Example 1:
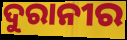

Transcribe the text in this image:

ଦୁରାନୀର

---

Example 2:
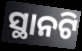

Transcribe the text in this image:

ସ୍ଥାନଟି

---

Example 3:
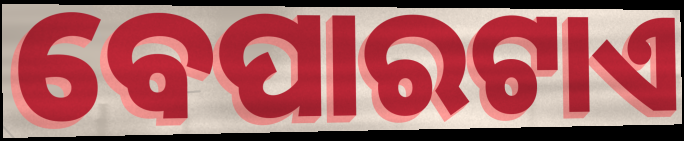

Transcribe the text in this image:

ବେପାରଟାଏ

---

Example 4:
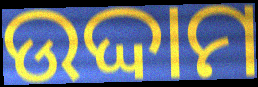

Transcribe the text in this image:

ଉଦ୍ଦାମ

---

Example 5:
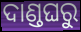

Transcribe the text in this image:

ଦାଣ୍ଡଘରୁ